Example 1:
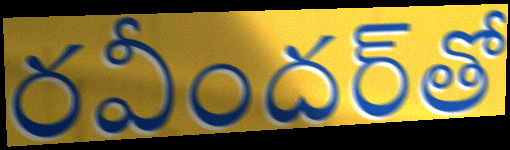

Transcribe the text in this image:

రవీందర్‌తో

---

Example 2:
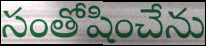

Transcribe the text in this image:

సంతోషించేను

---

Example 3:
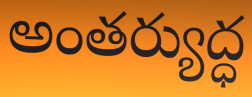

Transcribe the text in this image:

అంతర్యుద్ధ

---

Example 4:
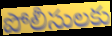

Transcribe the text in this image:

పోలీసులకు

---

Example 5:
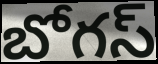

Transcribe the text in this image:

బోగస్